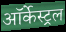
ऑर्केस्ट्रल